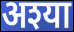
अश्या